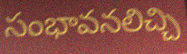
సంభావనలిచ్చి